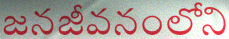
జనజీవనంలోని